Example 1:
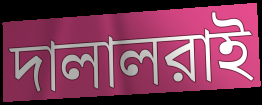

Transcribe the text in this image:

দালালরাই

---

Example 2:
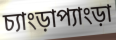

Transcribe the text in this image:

চ্যাংড়াপ্যাংড়া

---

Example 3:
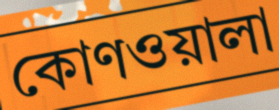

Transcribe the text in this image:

কোণওয়ালা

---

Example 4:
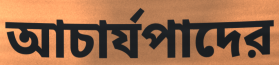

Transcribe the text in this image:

আচার্যপাদের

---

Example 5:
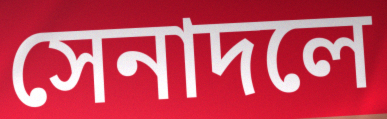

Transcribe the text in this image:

সেনাদলে